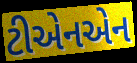
ટીએનએન